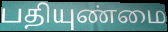
பதியுண்மை